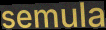
semula